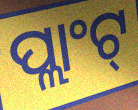
ପ୍ଲାଂଟ୍